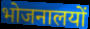
भोजनालयों